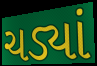
ચડ્યાં